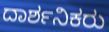
ದಾರ್ಶನಿಕರು